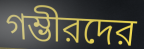
গম্ভীরদের